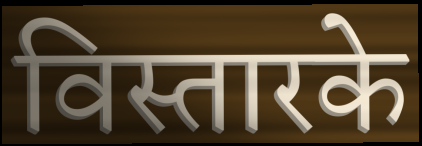
विस्तारके